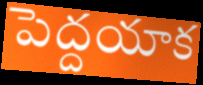
పెద్దయాక